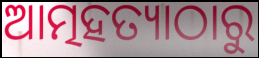
ଆତ୍ମହତ୍ୟାଠାରୁ